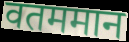
वतममान